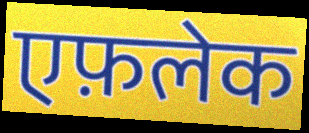
एफ़लेक